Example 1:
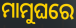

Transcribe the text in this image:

ମାମୁଘରେ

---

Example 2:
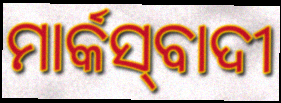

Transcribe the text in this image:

ମାର୍କସ୍‍ବାଦୀ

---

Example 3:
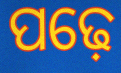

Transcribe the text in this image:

ପଢ଼େ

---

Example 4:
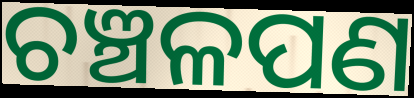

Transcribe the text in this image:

ଚଞ୍ଚଳପଣ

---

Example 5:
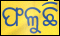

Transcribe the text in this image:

ଫଳୁଛି